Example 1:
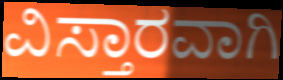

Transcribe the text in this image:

ವಿಸ್ತಾರವಾಗಿ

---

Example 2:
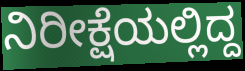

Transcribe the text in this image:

ನಿರೀಕ್ಷೆಯಲ್ಲಿದ್ದ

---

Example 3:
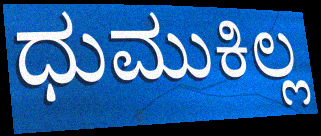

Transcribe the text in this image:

ಧುಮುಕಿಲ್ಲ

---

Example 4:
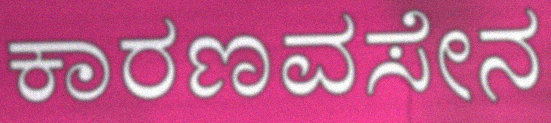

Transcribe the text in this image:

ಕಾರಣವಸೇನ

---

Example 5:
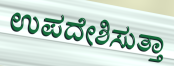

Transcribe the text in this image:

ಉಪದೇಶಿಸುತ್ತಾ